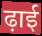
ढ़ाई